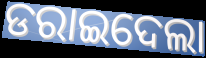
ଡରାଇଦେଲା